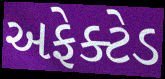
અફેક્ટેડ